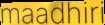
maadhiri